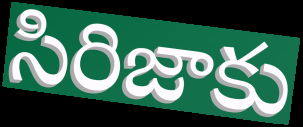
సిరిజాకు